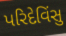
પરિદેવિંસુ